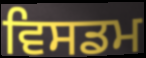
ਵਿਸਡਮ